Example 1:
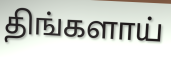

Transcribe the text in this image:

திங்களாய்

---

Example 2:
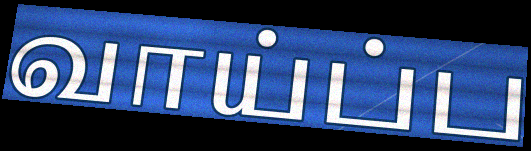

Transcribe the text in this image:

வாய்ப்ப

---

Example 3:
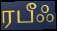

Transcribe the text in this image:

ரபீஃ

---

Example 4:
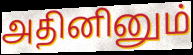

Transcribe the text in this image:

அதினினும்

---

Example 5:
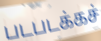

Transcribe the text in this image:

படபடக்கச்